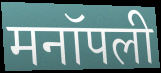
मनॉपली